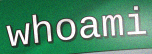
whoami